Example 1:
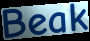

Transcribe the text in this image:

Beak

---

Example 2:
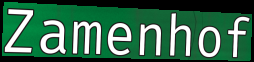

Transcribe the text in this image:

Zamenhof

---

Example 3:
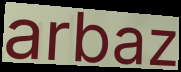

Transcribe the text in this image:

arbaz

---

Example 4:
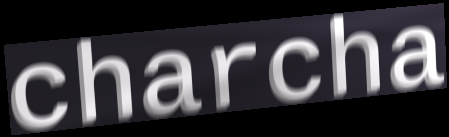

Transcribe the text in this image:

charcha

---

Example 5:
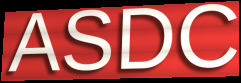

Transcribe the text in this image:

ASDC